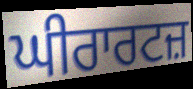
ਘੀਰਾਰਟਜ਼